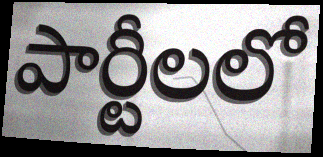
పార్టీలలో